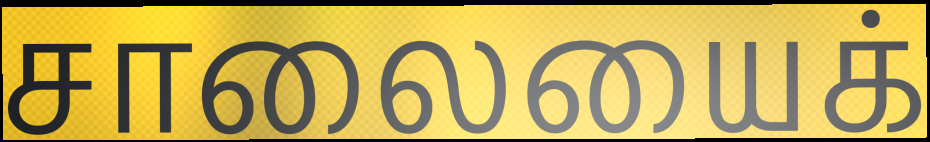
சாலையைக்